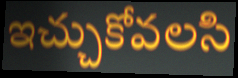
ఇచ్చుకోవలసి